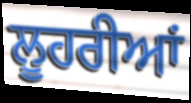
ਲੂਹਰੀਆਂ